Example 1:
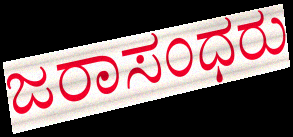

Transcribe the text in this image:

ಜರಾಸಂಧರು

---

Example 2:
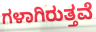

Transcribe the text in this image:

ಗಳಾಗಿರುತ್ತವೆ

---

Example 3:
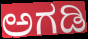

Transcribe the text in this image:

ಅಗಡಿ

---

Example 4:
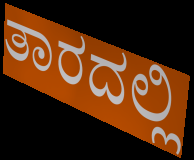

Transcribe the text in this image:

ತಾರದಲ್ಲಿ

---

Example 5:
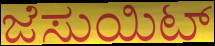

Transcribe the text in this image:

ಜೆಸುಯಿಟ್